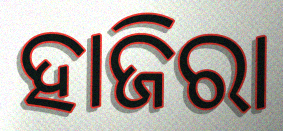
ହାଜିରା